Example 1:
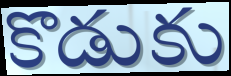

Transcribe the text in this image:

కొడుకు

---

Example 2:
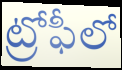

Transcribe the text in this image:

ట్రోఫీలో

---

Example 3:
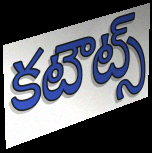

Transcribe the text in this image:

కటౌట్స్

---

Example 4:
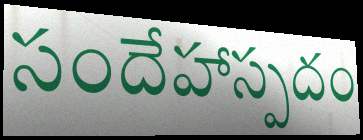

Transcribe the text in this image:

సందేహాస్పదం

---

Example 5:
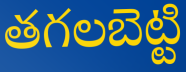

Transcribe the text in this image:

తగలబెట్టి